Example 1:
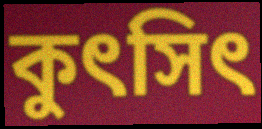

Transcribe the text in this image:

কুৎসিৎ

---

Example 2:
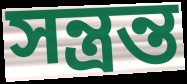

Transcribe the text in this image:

সন্ত্রন্ত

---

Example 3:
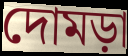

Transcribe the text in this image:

দোমড়া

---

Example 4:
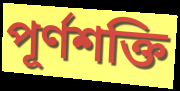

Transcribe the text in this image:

পূর্ণশক্তি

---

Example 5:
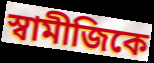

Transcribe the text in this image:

স্বামীজিকে